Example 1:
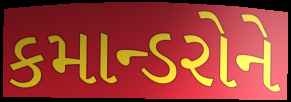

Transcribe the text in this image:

કમાન્ડરોને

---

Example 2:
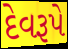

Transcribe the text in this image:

દેવરૂપે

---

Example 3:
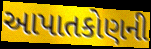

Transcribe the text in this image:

આપાતકોણની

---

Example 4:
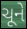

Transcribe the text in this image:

ચૂને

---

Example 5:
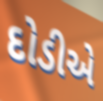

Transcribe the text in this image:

દોડીએ